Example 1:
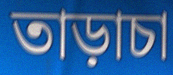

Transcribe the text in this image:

তাড়াচা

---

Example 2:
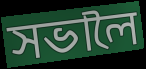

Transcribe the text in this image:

সভালৈ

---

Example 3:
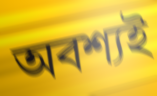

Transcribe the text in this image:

অবশ্যই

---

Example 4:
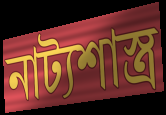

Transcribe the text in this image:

নাট্যশাস্ত্ৰ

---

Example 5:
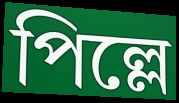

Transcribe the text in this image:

পিল্লে